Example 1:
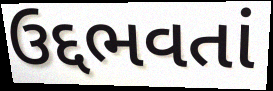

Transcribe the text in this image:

ઉદ્દભવતાં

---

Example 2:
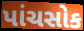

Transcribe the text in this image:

પાંચસોક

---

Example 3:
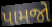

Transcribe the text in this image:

પામજો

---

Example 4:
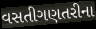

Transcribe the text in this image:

વસતીગણતરીના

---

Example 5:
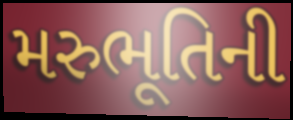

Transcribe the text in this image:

મરુભૂતિની